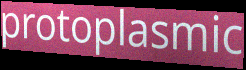
protoplasmic